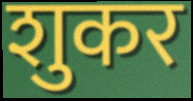
शुकर